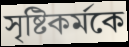
সৃষ্টিকর্মকে